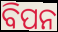
ବିପନ